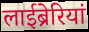
लाईब्रेरियां